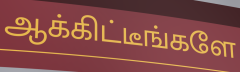
ஆக்கிட்டீங்களே